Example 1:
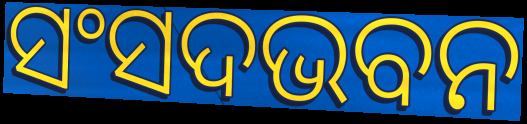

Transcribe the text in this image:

ସଂସଦଭବନ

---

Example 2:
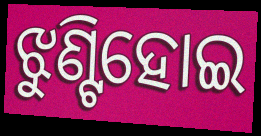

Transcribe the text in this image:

ଝୁଣ୍ଟିହୋଇ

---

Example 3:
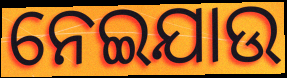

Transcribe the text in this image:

ନେଇଯାଉ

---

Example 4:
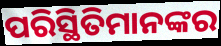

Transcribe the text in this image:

ପରିସ୍ଥିତିମାନଙ୍କର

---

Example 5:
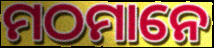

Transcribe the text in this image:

ମଠମାନେ